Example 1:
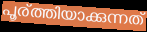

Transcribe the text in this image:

പൂര്ത്തിയാക്കുന്നത്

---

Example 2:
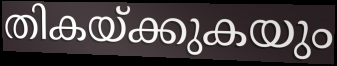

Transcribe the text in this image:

തികയ്ക്കുകയും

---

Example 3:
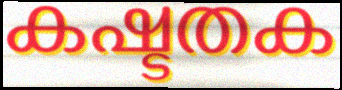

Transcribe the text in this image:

കഷ്ടതക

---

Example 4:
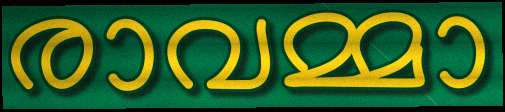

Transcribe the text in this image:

രാവമ്മാ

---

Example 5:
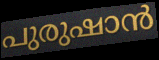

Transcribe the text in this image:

പുരുഷാൻ